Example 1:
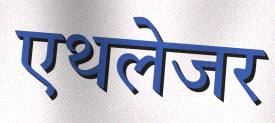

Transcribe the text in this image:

एथलेजर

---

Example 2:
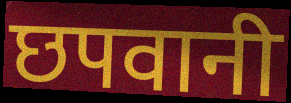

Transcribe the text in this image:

छपवानी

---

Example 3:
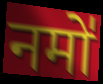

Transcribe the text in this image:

नमो॑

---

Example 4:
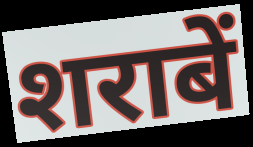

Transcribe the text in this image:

शराबें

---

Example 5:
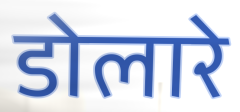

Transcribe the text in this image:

डोलारे